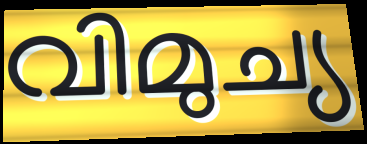
വിമുച്യ